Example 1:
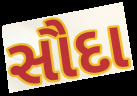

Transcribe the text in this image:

સૌદા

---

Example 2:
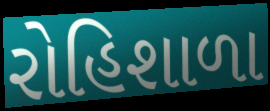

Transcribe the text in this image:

રોહિશાળા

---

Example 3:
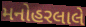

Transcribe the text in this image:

મનોહરલાલે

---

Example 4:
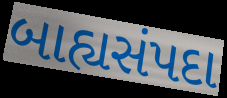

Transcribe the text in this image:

બાહ્યસંપદા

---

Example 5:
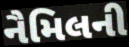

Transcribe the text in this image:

નૈમિલની